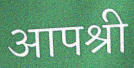
आपश्री